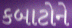
કબાટોને